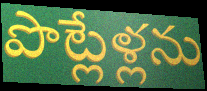
పొట్లేళ్లను